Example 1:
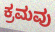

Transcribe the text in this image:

ಕ್ರಮವು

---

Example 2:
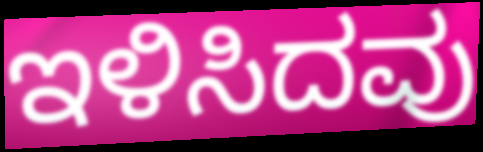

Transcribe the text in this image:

ಇಳಿಸಿದವು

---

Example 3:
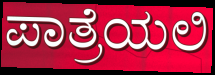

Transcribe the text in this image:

ಪಾತ್ರೆಯಲಿ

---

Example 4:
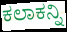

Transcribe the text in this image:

ಕಲಾಕನ್ನಿ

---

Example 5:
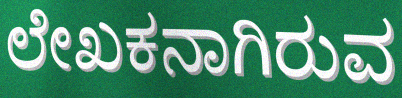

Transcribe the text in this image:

ಲೇಖಕನಾಗಿರುವ